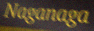
Naganaga